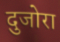
दुजोरा